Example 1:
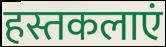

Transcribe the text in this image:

हस्तकलाएं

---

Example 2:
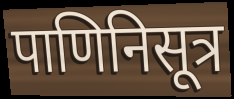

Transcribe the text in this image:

पाणिनिसूत्र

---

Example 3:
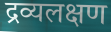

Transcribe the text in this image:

द्रव्यलक्षण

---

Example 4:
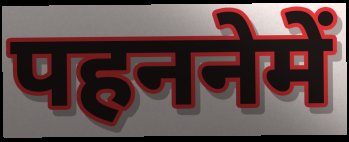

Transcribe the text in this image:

पहननेमें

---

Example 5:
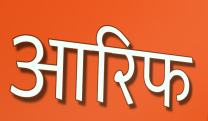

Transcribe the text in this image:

आरिफ